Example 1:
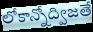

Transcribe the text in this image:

లోకాన్నోద్విజతే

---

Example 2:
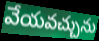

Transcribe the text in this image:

వేయవచ్చును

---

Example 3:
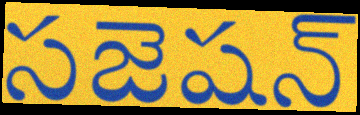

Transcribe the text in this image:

సజెషన్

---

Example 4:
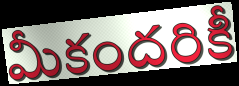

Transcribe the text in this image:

మీకందరికీ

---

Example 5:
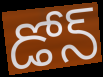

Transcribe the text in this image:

డోన్